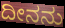
ದೀನನು